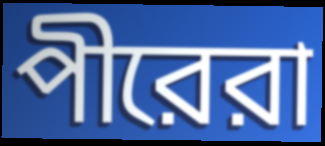
পীরেরা